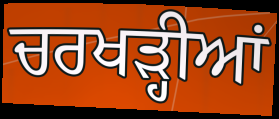
ਚਰਖੜ੍ਹੀਆਂ